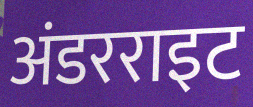
अंडरराइट